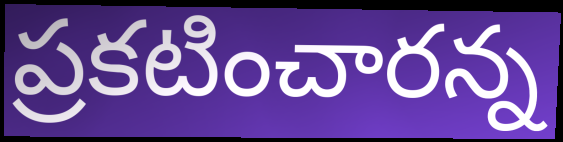
ప్రకటించారన్న